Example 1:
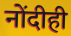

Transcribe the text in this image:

नोंदीही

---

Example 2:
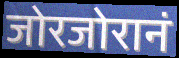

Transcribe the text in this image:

जोरजोरानं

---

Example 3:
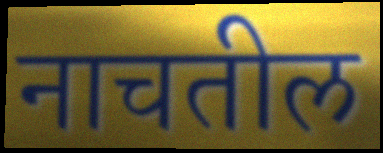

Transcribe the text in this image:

नाचतील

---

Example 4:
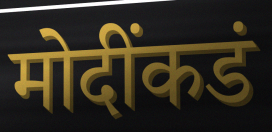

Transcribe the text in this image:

मोदींकडं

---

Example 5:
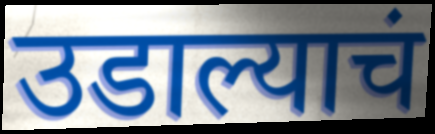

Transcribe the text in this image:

उडाल्याचं